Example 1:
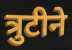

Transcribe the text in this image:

त्रुटीने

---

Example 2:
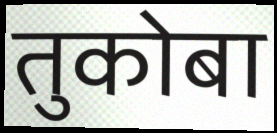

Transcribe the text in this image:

तुकोबा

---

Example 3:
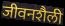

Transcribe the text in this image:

जीवनशैली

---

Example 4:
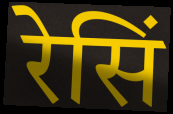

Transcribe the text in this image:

रेसिं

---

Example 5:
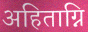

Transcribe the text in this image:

अहिताग्नि